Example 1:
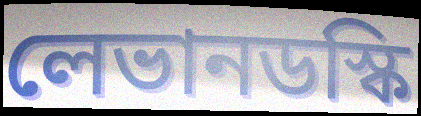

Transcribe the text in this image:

লেভানডস্কি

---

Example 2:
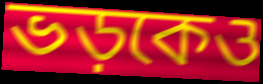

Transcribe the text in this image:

ভড়কেও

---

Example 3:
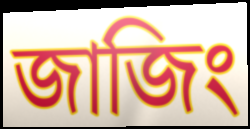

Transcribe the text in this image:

জাজিং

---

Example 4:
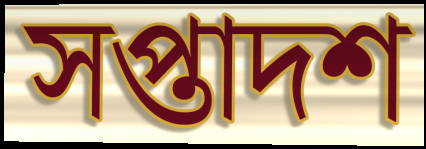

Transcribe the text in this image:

সপ্তাদশ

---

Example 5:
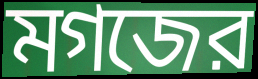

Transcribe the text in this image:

মগজের